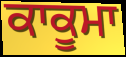
ਕਾਕੂਮਾ